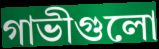
গাভীগুলো